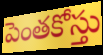
పెంతకోస్తు